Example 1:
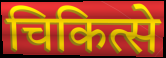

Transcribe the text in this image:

चिकित्से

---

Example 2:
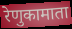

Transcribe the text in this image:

रेणुकामाता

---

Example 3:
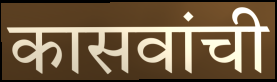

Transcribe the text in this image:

कासवांची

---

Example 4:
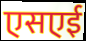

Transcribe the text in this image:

एसएई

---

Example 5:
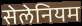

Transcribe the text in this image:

सेलेनियम